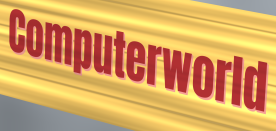
Computerworld